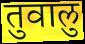
तुवालु